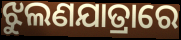
ଝୁଲଣଯାତ୍ରାରେ